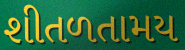
શીતળતામય